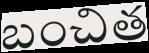
బంచిత